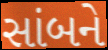
સાંબને